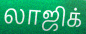
லாஜிக்